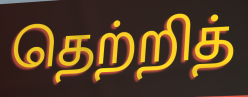
தெற்றித்